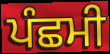
ਪੰਛਮੀ